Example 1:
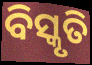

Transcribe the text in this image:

ବିସ୍କୃତି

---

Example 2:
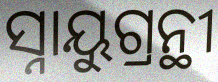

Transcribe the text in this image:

ସ୍ନାୟୁଗ୍ରନ୍ଥୀ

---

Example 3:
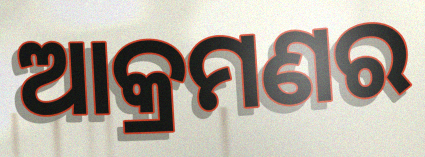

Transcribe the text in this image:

ଆକ୍ରମଣର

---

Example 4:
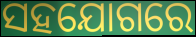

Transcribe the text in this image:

ସହଯୋଗରେ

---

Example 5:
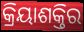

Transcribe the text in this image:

କ୍ରିୟାଶକ୍ତିର